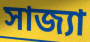
সাজ্যা